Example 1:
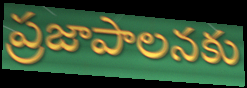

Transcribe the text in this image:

ప్రజాపాలనకు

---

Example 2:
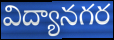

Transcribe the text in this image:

విద్యానగర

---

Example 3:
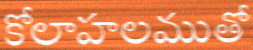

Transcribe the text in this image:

కోలాహలముతో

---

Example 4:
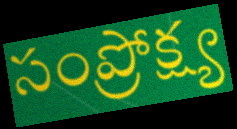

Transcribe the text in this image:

సంప్రోక్ష్య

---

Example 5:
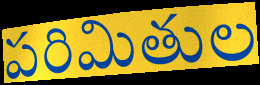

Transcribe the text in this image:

పరిమితుల